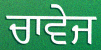
ਚਾਵੇਜ